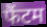
फैंटम